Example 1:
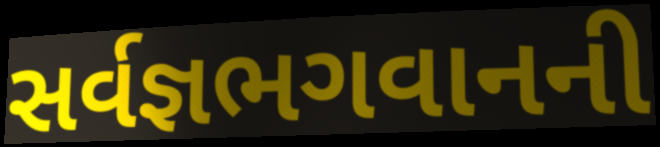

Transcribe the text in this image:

સર્વજ્ઞભગવાનની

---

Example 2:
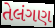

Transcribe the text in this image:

તેલંગણ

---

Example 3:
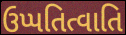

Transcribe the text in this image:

ઉપ્પતિત્વાતિ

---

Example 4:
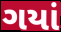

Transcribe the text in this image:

ગયાં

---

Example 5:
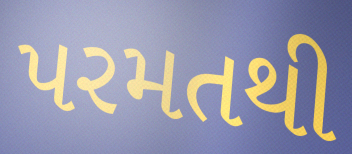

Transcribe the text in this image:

પરમતથી